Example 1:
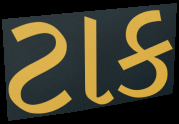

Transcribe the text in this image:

ટાક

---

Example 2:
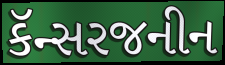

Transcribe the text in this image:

કૅન્સરજનીન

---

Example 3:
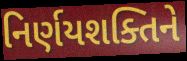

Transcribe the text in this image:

નિર્ણયશક્તિને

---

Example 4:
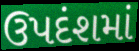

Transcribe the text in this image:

ઉપદંશમાં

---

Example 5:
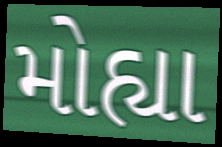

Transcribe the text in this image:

મોહ્યા